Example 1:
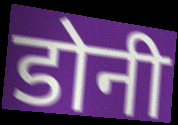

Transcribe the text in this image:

डोनी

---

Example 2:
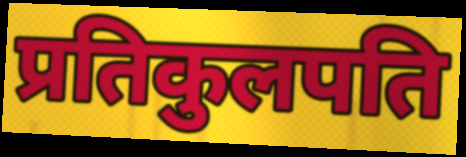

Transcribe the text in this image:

प्रतिकुलपति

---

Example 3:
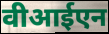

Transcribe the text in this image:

वीआईएन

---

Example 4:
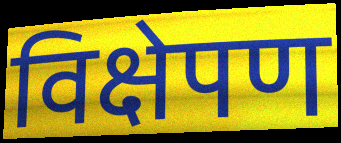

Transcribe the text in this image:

विक्षेपण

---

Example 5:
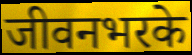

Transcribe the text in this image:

जीवनभरके